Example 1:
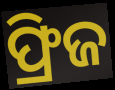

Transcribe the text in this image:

ଫ୍ରିଜ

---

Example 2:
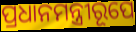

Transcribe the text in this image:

ପ୍ରଧାନମନ୍ତ୍ରୀରୂପେ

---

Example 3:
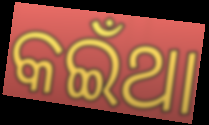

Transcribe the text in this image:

କଇଁଥା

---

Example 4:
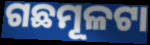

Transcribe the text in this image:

ଗଛମୂଳଟା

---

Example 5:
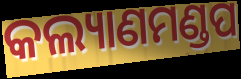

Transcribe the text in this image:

କଲ୍ୟାଣମଣ୍ଡପ